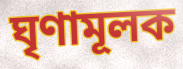
ঘৃণামূলক